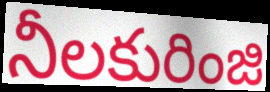
నీలకురింజి